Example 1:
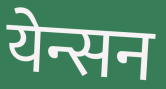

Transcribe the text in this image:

येन्सन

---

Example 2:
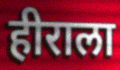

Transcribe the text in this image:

हीराला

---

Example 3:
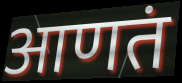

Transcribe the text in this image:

आणतं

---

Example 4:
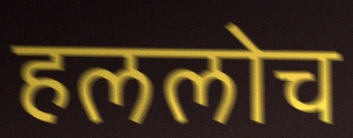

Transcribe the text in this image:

हललोच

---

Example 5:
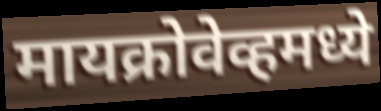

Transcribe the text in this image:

मायक्रोवेव्हमध्ये